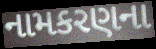
નામકરણના